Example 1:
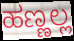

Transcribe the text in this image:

ಹಣ್ಣಲ್ಲ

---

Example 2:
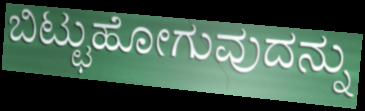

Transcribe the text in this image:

ಬಿಟ್ಟುಹೋಗುವುದನ್ನು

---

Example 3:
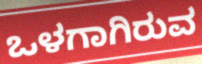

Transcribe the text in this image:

ಒಳಗಾಗಿರುವ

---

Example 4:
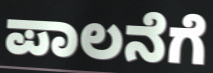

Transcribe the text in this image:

ಪಾಲನೆಗೆ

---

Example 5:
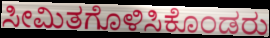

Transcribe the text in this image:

ಸೀಮಿತಗೊಳಿಸಿಕೊಂಡರು